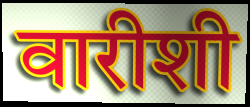
वारीशी